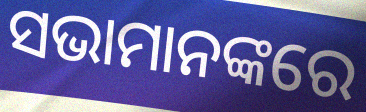
ସଭାମାନଙ୍କରେ